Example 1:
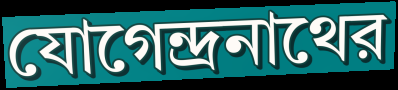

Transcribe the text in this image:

যোগেন্দ্রনাথের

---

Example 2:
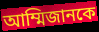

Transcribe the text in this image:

আম্মিজানকে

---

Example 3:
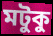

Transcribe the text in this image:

মটুকু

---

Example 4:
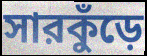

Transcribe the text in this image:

সারকুঁড়ে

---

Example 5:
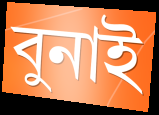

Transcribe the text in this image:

বুনাই